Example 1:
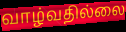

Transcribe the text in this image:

வாழ்வதில்லை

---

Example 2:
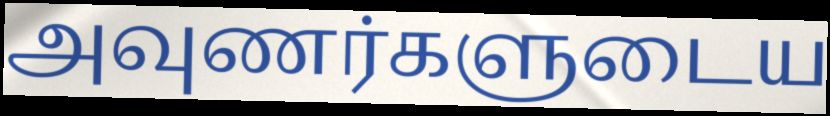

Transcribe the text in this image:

அவுணர்களுடைய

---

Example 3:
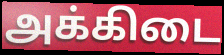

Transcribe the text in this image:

அக்கிடை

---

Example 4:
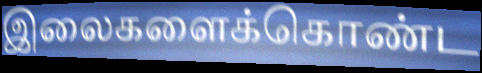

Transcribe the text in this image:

இலைகளைக்கொண்ட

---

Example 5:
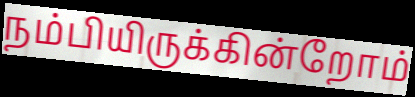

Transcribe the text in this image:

நம்பியிருக்கின்றோம்